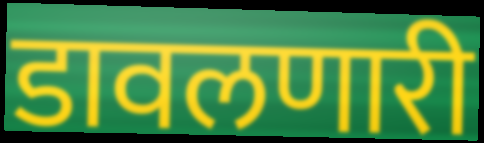
डावलणारी